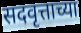
सदवृत्ताच्या